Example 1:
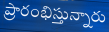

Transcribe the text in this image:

ప్రారంభిస్తున్నారు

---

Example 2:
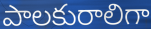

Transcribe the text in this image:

పాలకురాలిగా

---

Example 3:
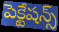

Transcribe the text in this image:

పెక్టేషన్స్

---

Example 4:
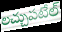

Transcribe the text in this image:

లచ్చుపటేల్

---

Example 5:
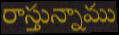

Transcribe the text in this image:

రాస్తున్నాము